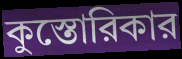
কুস্তোরিকার